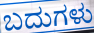
ಬದುಗಳು